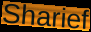
Sharief